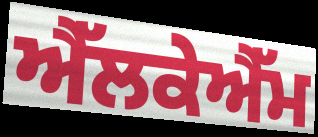
ਐੱਲਕੇਐੱਮ